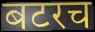
बटरच